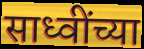
साध्वींच्या